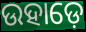
ଉହାଡ଼େ